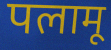
पलामू